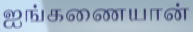
ஐங்கணையான்